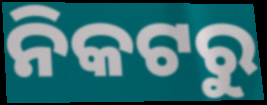
ନିକଟରୁ